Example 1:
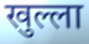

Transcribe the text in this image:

खुल्ला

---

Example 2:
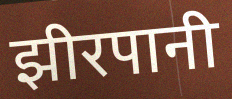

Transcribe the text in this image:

झीरपानी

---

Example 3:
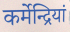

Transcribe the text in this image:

कर्मेन्द्रियां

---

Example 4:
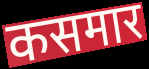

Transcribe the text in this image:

कसमार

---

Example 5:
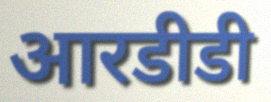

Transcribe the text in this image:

आरडीडी